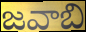
జవాబి